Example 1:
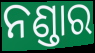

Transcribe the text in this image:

ନଣ୍ଡାର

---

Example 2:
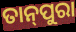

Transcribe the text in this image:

ତାନ୍‌ପୁରା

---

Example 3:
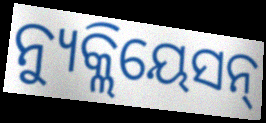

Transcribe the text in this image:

ନ୍ୟୁକ୍ଲିୟେସନ୍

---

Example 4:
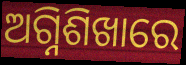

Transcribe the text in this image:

ଅଗ୍ନିଶିଖାରେ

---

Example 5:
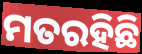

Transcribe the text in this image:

ମତରହିଛି